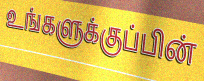
உங்களுக்குப்பின்